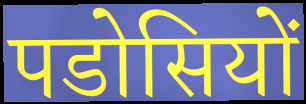
पडोसियों